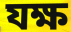
যক্ষ